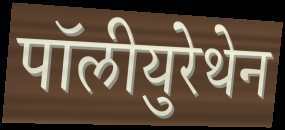
पॉलीयुरेथेन